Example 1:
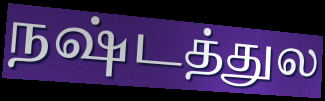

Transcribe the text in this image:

நஷ்டத்துல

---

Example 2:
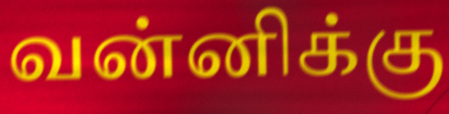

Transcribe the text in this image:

வன்னிக்கு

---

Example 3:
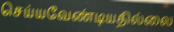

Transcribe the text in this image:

செய்யவேண்டியதில்லை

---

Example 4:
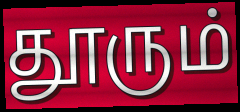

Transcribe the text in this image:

தூரும்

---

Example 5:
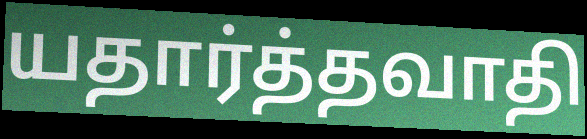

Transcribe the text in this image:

யதார்த்தவாதி